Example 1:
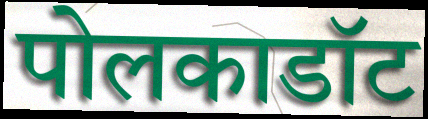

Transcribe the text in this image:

पोलकाडॉट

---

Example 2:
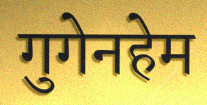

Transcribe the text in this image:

गुगेनहेम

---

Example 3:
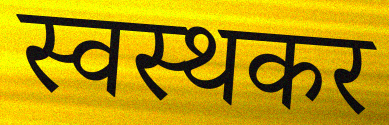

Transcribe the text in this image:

स्वस्थकर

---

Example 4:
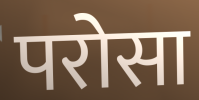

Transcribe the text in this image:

परोसा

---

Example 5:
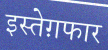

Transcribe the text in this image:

इस्तेग़फार